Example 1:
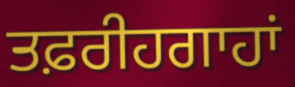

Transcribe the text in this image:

ਤਫ਼ਰੀਹਗਾਹਾਂ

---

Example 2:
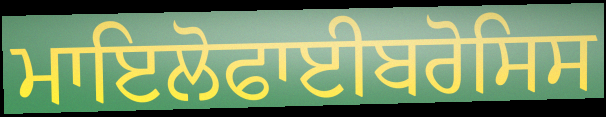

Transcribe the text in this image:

ਮਾਇਲੋਫਾਈਬਰੋਸਿਸ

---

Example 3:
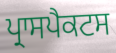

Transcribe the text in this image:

ਪ੍ਰਾਸਪੈਕਟਸ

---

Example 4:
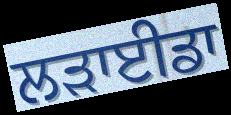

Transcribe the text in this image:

ਲੜਾਈਡਾ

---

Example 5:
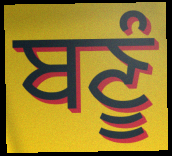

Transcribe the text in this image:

ਬਣੂੰ